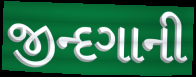
જીન્દગાની